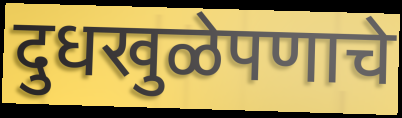
दुधखुळेपणाचे